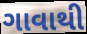
ગાવાથી